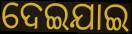
ଦେଇଯାଇ